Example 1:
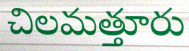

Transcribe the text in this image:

చిలమత్తూరు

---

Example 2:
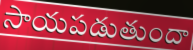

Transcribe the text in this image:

సాయపడుతుందా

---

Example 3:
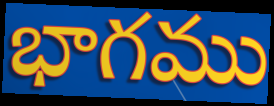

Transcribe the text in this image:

భాగము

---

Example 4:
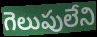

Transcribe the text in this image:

గెలుపులేని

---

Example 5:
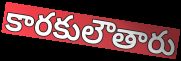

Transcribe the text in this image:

కారకులౌతారు